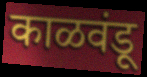
काळवंडू